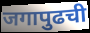
जगापुढची